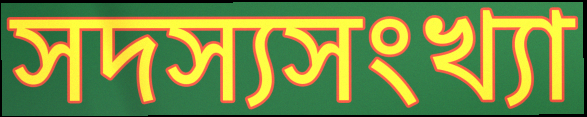
সদস্যসংখ্যা